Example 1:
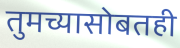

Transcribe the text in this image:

तुमच्यासोबतही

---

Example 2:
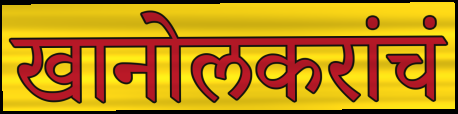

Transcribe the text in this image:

खानोलकरांचं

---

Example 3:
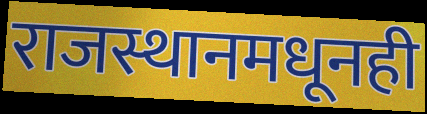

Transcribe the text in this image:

राजस्थानमधूनही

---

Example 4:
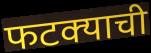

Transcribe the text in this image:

फटक्याची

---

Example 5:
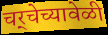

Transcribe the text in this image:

चर्चेच्यावेळी